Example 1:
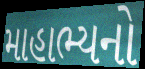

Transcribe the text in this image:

માહાભ્યનો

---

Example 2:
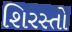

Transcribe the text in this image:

શિરસ્તો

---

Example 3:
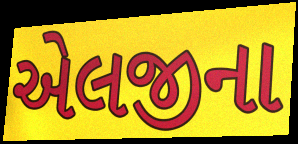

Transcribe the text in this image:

એલજીના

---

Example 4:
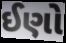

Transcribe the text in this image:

ઈણો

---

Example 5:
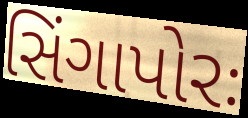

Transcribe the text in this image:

સિંગાપોરઃ